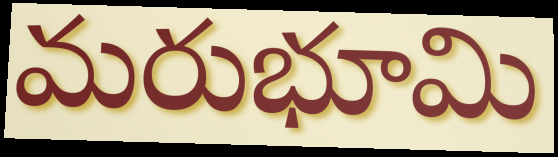
మరుభూమి